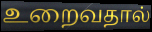
உறைவதால்